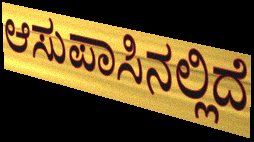
ಆಸುಪಾಸಿನಲ್ಲಿದೆ